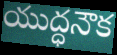
యుద్ధనౌక